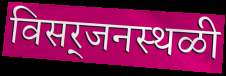
विसर्जनस्थळी